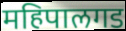
महिपालगड